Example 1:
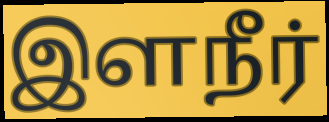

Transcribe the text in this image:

இளநீர்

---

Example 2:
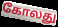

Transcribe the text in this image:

கோலது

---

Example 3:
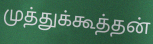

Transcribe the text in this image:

முத்துக்கூத்தன்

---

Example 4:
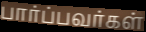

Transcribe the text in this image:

பார்ப்பவர்கள்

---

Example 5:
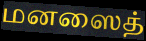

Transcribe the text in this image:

மனஸைத்